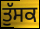
ਤੁੱਸਕ